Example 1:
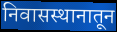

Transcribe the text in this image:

निवासस्थानातून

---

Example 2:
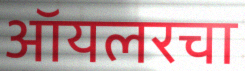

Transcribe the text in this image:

ऑयलरचा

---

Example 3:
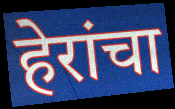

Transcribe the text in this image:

हेरांचा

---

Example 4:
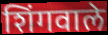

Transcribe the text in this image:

शिंगवाले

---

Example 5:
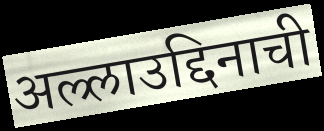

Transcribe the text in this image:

अल्लाउद्दिनाची